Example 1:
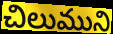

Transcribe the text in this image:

చిలుముని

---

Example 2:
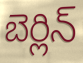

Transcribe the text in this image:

బెర్లిన్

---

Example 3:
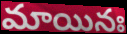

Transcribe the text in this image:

మాయినః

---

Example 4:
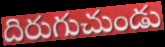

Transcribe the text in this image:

దిరుగుచుండు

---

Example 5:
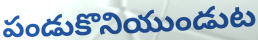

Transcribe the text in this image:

పండుకొనియుండుట